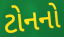
ટોનનો